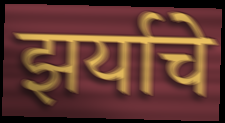
झर्याचे